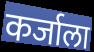
कर्जाला